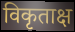
विकृताक्ष